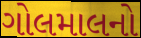
ગોલમાલનો